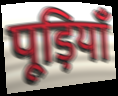
पूड़ियाँ